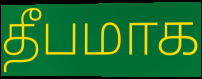
தீபமாக